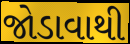
જોડાવાથી